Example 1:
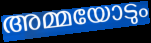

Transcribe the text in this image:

അമ്മയോടും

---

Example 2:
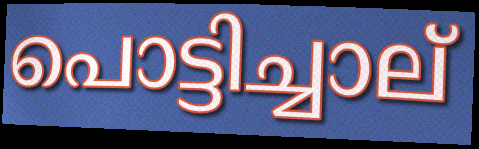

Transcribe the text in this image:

പൊട്ടിച്ചാല്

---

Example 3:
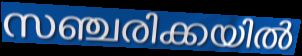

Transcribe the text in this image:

സഞ്ചരിക്കയിൽ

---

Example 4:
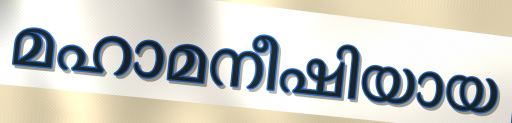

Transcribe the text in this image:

മഹാമനീഷിയായ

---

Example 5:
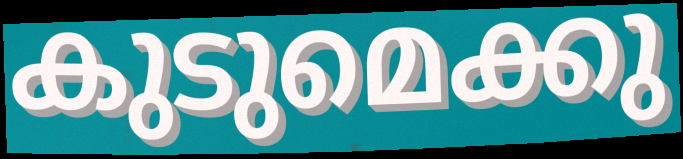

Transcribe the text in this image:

കുടുമെക്കു